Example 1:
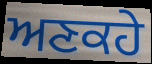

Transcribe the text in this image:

ਅਣਕਹੇ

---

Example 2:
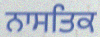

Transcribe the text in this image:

ਨਾਸਤਿਕ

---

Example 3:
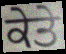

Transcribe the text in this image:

ਕੇਤੇ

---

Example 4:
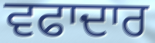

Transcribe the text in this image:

ਵਫਾਦਾਰ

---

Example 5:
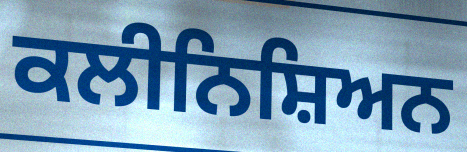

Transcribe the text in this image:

ਕਲੀਨਿਸ਼ਿਅਨ